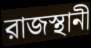
রাজস্থানী